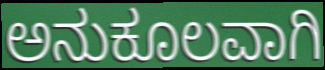
ಅನುಕೂಲವಾಗಿ